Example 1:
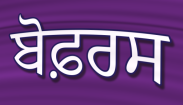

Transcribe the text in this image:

ਬੋਫ਼ਰਸ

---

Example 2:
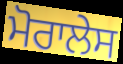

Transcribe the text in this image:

ਮੋਰਾਲੇਸ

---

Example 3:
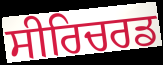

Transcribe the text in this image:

ਸੀਰਿਚਰਡ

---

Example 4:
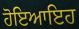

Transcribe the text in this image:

ਹੋਇਆਇਹ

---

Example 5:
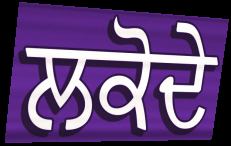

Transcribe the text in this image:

ਲਕੋਦੇ